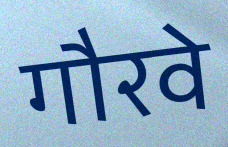
गौरवे